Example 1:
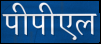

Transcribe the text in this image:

पीपीएल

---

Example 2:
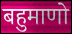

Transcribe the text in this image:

बहुमाणो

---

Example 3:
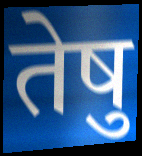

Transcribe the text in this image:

तेषु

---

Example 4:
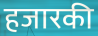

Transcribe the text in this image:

हजारकी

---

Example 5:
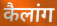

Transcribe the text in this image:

कैलांग